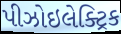
પીઝોઇલેક્ટ્રિક